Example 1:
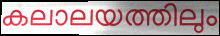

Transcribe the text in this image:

കലാലയത്തിലും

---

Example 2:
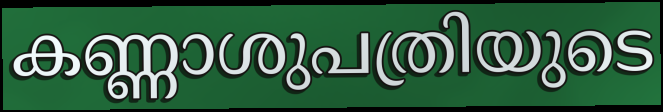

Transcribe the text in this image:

കണ്ണാശുപത്രിയുടെ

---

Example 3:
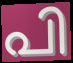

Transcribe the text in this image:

പി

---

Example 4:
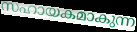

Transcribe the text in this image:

സഹായകമാകുന്ന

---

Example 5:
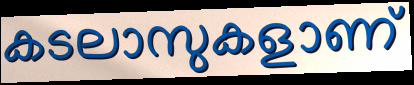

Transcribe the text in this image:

കടലാസുകളാണ്